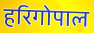
हरिगोपाल